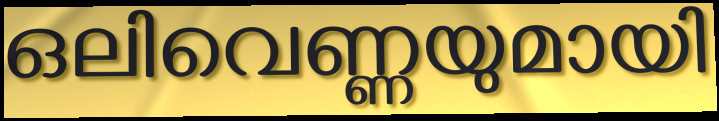
ഒലിവെണ്ണയുമായി